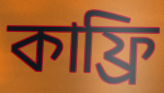
কাফ্রি